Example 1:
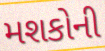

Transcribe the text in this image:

મશકોની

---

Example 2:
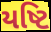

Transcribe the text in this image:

યષ્ટિ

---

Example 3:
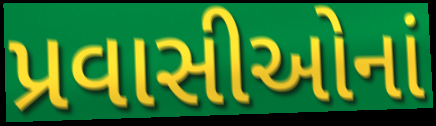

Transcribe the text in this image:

પ્રવાસીઓનાં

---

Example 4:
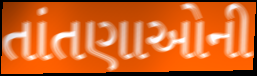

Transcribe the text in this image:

તાંતણાઓની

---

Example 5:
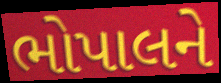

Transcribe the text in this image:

ભોપાલને